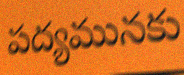
పద్యమునకు